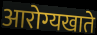
आरोग्यखाते